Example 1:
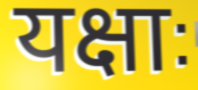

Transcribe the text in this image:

यक्षाः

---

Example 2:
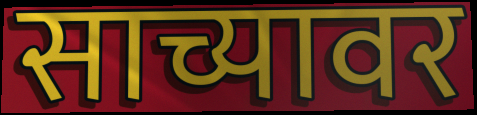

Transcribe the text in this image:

साच्यावर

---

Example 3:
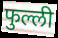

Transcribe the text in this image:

फुल्ली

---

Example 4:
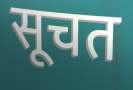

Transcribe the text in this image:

सूचत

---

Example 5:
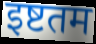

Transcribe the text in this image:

इष्टतम